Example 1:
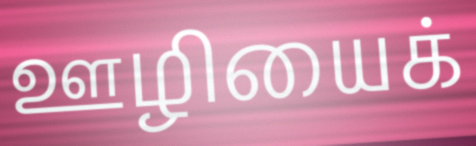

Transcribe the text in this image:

ஊழியைக்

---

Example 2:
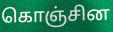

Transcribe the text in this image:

கொஞ்சின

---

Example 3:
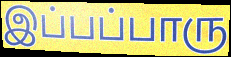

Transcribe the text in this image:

இப்பப்பாரு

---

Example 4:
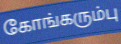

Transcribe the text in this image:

கோங்கரும்பு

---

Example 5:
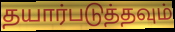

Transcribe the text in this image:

தயார்படுத்தவும்